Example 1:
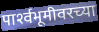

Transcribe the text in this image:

पार्श्वभूमीवरच्या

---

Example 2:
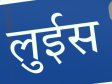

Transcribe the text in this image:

लुईस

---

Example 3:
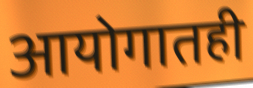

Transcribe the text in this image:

आयोगातही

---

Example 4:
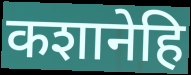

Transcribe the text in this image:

कशानेहि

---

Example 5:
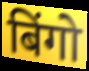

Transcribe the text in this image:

बिंगो